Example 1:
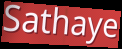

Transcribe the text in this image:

Sathaye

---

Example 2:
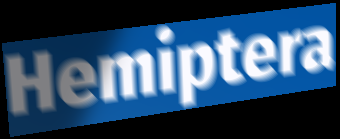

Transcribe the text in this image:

Hemiptera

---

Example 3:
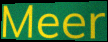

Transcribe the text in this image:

Meer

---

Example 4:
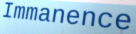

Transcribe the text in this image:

Immanence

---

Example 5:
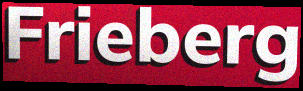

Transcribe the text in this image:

Frieberg